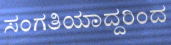
ಸಂಗತಿಯಾದ್ದರಿಂದ